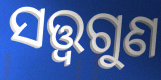
ସତ୍ତ୍ୱଗୁଣ